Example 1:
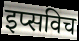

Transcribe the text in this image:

इप्सविच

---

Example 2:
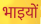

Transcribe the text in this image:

भाइयों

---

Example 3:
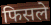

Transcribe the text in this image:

फिसले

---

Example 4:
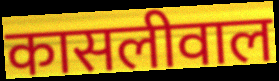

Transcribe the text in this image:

कासलीवाल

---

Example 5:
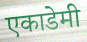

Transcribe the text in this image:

एकाडेमी